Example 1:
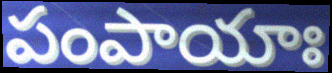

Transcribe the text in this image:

పంపాయాః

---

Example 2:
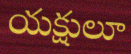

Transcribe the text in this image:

యక్షులూ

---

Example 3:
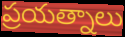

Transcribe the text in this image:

ప్రయత్నాలు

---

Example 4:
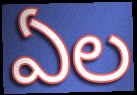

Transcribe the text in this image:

ఏల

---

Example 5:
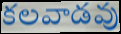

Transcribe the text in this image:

కలవాడవు